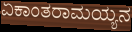
ಏಕಾಂತರಾಮಯ್ಯನ